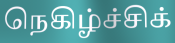
நெகிழ்ச்சிக்